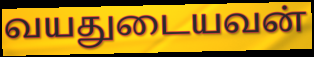
வயதுடையவன்